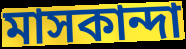
মাসকান্দা